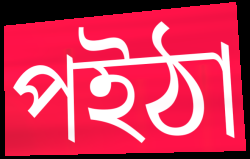
পইঠা